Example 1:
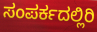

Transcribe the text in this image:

ಸಂಪರ್ಕದಲ್ಲಿರಿ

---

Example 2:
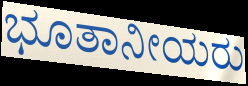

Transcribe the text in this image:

ಭೂತಾನೀಯರು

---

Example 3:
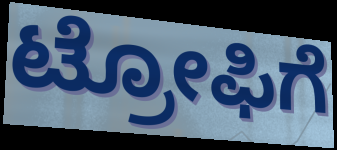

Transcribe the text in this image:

ಟ್ರೋಫಿಗೆ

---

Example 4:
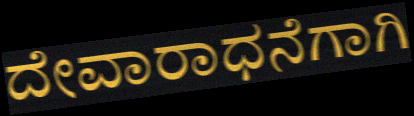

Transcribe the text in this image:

ದೇವಾರಾಧನೆಗಾಗಿ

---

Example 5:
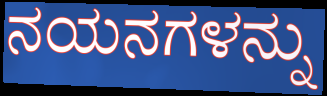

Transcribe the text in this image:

ನಯನಗಳನ್ನು